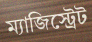
ম্যাজিস্ট্রেট